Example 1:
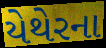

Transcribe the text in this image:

યેથેરના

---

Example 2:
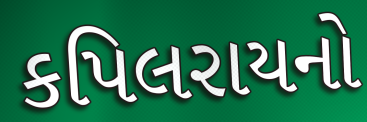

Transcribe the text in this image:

કપિલરાયનો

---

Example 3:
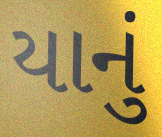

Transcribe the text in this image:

યાનું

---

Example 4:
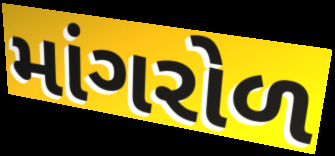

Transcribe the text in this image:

માંગરોળ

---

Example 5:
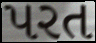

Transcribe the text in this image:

પરત